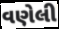
વણેલી